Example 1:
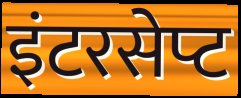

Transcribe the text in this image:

इंटरसेप्‍ट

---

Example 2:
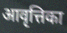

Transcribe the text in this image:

आवृत्तिका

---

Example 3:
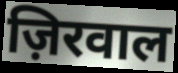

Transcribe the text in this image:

ज़िरवाल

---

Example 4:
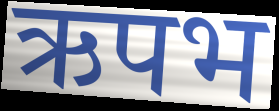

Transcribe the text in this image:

ऋपभ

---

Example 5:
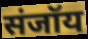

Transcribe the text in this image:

संजॉय